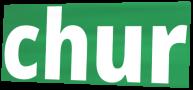
chur